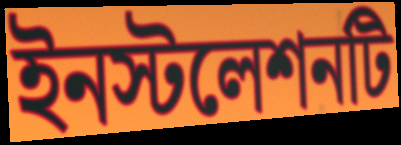
ইনস্টলেশনটি